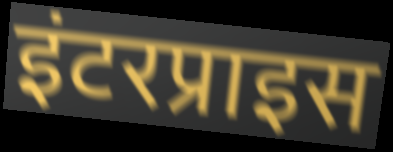
इंटरप्राइस